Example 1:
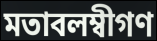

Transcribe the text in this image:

মতাবলম্বীগণ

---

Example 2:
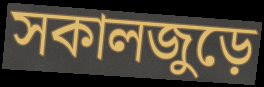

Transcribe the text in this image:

সকালজুড়ে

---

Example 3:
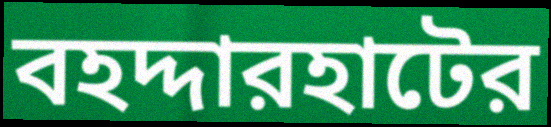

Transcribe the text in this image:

বহদ্দারহাটের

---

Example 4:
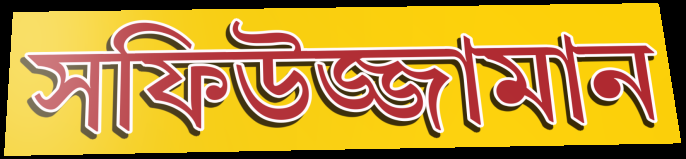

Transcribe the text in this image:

সফিউজ্জামান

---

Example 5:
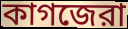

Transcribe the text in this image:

কাগজেরা